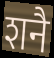
शनै